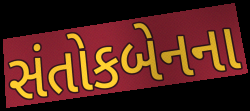
સંતોકબેનના